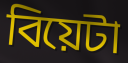
বিয়েটা